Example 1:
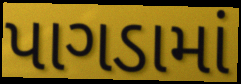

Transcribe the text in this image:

પાગડામાં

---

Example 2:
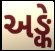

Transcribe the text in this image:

અઙ્કે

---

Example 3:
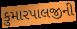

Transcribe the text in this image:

કુમારપાલજીની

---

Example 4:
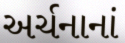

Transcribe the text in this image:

અર્ચનાનાં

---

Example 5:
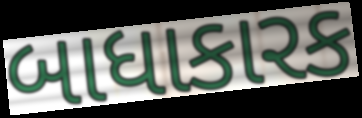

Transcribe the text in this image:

બાધાકારક